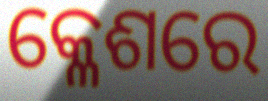
କ୍ଳେଶରେ